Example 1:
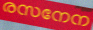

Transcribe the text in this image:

രസനേന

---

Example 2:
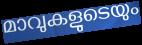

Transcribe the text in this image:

മാവുകളുടെയും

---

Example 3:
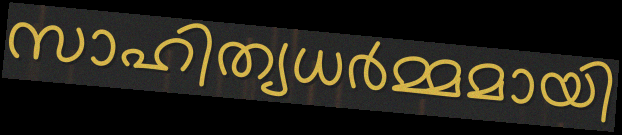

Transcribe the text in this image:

സാഹിത്യധർമ്മമായി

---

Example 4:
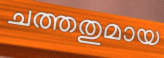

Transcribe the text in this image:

ചത്തതുമായ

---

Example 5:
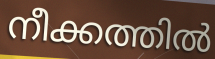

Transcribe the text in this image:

നീക്കത്തിൽ